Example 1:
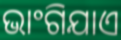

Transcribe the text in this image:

ଭାଂଗିଯାଏ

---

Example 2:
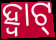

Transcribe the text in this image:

ହ୍ବାଟ୍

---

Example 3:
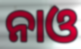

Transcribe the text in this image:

ନାଓ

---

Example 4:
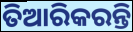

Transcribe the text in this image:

ତିଆରିକରନ୍ତି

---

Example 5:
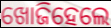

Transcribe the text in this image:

ଖୋଜିହେଲେ